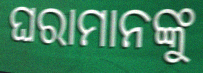
ଘରାମାନଙ୍କୁ